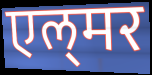
एल्मर